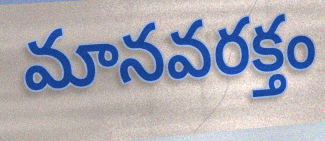
మానవరక్తం